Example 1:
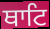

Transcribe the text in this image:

ਥਾਟਿ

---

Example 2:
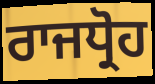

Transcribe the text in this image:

ਰਾਜਧ੍ਰੋਹ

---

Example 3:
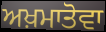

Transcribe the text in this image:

ਅਖ਼ਮਾਤੋਵਾ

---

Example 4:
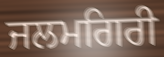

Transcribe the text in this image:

ਜਲਮਗਿਰੀ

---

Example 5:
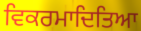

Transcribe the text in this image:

ਵਿਕਰਮਾਦਿਤਿਆ